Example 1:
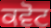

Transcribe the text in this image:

ਕਵੋਟ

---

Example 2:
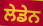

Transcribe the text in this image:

ਲੇਡੇਨ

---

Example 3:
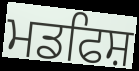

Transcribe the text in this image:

ਮਡਫਿਸ਼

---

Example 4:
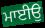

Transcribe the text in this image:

ਮਾਈਉ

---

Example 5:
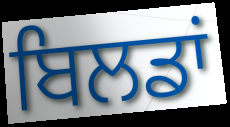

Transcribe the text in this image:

ਬਿਲਡਾਂ